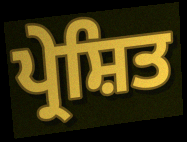
ਪ੍ਰੇਸ਼ਿਤ